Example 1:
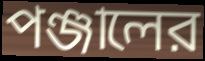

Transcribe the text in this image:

পঞ্জালের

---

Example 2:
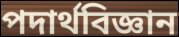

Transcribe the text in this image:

পদার্থবিজ্ঞান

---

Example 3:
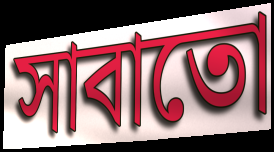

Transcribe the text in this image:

সাবাতো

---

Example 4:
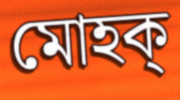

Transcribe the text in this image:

মোহক্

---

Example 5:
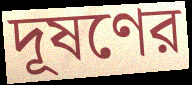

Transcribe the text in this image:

দূষণের